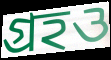
গ্রহও